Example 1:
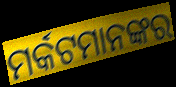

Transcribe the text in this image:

ମର୍କଟମାନଙ୍କର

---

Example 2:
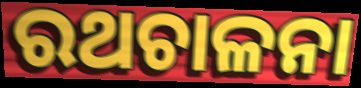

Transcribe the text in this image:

ରଥଚାଳନା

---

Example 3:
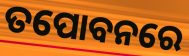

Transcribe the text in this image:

ତପୋବନରେ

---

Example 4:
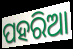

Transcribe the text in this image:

ପହରିଆ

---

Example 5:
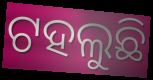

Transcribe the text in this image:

ଟହଲୁଛି